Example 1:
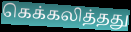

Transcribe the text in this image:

கெக்கலித்தது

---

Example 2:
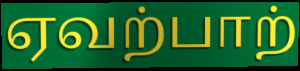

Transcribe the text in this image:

ஏவற்பாற்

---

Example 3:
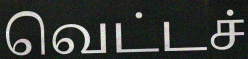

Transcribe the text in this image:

வெட்டச்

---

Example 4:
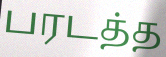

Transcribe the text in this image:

பரடத்த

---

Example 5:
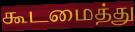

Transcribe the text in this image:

கூடமைத்து